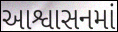
આશ્વાસનમાં